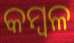
କମ୍ବଳ